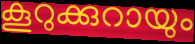
കൂറുക്കുറായും